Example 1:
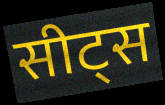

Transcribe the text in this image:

सीट्स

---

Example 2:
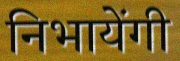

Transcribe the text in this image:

निभायेंगी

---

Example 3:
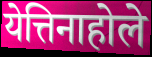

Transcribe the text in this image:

येत्तिनाहोले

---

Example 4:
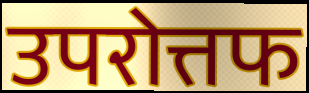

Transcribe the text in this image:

उपरोत्तफ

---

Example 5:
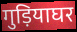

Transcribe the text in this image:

गुड़ियाघर